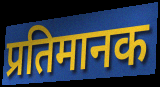
प्रतिमानक